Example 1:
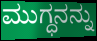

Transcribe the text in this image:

ಮುಗ್ಧನನ್ನು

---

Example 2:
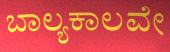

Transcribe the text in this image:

ಬಾಲ್ಯಕಾಲವೇ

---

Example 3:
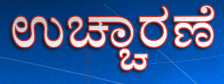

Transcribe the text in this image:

ಉಚ್ಚಾರಣೆ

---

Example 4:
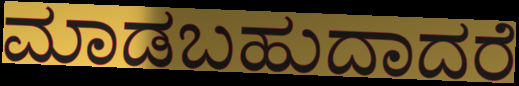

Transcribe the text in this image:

ಮಾಡಬಹುದಾದರೆ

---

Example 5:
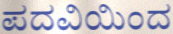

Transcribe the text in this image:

ಪದವಿಯಿಂದ